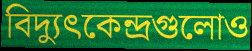
বিদ্যুৎকেন্দ্রগুলোও